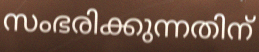
സംഭരിക്കുന്നതിന്